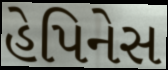
હેપિનેસ